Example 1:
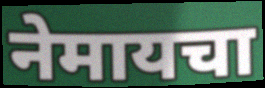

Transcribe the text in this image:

नेमायचा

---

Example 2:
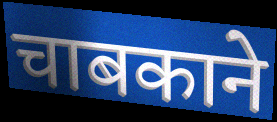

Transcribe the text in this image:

चाबकाने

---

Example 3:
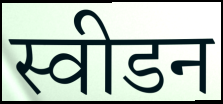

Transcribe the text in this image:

स्वीडन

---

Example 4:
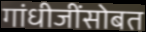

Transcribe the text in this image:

गांधीजींसोबत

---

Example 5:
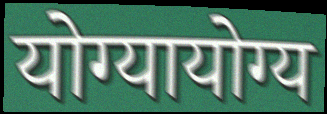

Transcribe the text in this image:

योग्यायोग्य